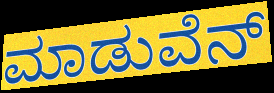
ಮಾಡುವೆನ್